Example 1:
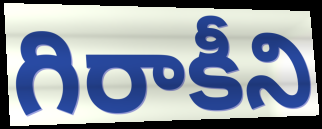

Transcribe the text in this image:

గిరాకీని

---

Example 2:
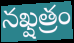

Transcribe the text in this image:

నఖ్షత్రం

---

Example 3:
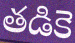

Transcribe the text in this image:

తడికె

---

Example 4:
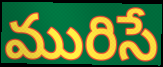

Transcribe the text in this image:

మురిసే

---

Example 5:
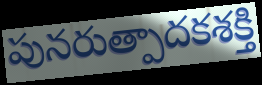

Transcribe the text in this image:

పునరుత్పాదకశక్తి